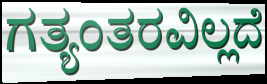
ಗತ್ಯಂತರವಿಲ್ಲದೆ